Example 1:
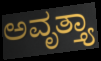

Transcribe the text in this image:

ಅವೃತ್ತ್ಯಾ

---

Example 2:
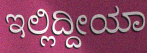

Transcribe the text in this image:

ಇಲ್ಲಿದ್ದೀಯಾ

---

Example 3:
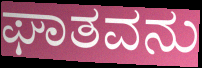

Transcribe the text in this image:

ಘಾತವನು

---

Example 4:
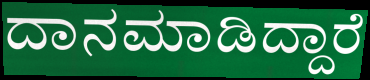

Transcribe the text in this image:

ದಾನಮಾಡಿದ್ದಾರೆ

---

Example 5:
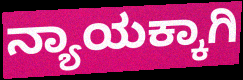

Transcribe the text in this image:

ನ್ಯಾಯಕ್ಕಾಗಿ